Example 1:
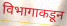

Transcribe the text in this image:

विभागाकडून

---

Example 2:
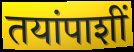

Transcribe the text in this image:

तयांपाशीं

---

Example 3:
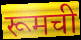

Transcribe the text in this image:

रूमची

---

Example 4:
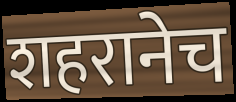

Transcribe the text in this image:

शहरानेच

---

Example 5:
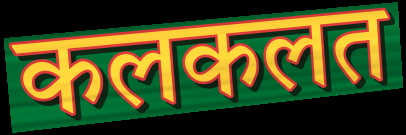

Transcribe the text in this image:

कलकलत